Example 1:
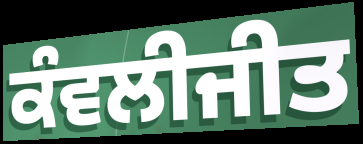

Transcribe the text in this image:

ਕੰਵਲੀਜੀਤ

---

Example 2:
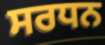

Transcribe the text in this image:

ਸਰਧਨ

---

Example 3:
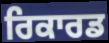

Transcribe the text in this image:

ਰਿਕਾਰਡ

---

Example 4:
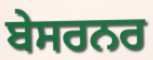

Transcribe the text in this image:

ਬੇਸਰਨਰ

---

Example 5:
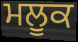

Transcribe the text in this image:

ਮਲੂਕ